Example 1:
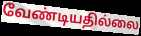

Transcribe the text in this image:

வேண்டியதில்லை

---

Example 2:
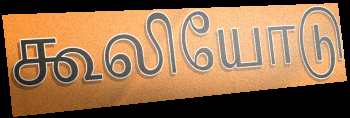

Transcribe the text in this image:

கூலியோடு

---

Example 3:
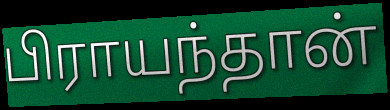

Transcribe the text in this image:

பிராயந்தான்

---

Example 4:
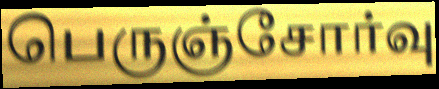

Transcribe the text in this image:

பெருஞ்சோர்வு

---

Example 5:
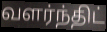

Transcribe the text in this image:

வளர்ந்திட்